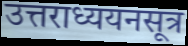
उत्तराध्ययनसूत्र